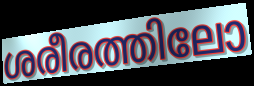
ശരീരത്തിലോ